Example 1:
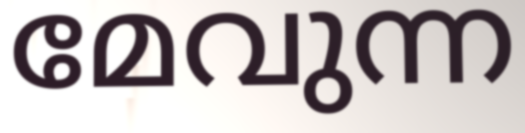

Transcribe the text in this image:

മേവുന്ന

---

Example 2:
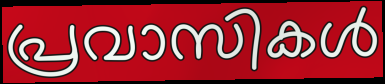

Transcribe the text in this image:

പ്രവാസികൾ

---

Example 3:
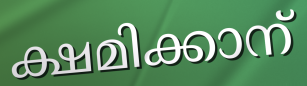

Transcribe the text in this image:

ക്ഷമിക്കാന്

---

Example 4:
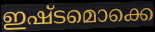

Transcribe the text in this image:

ഇഷ്ടമൊക്കെ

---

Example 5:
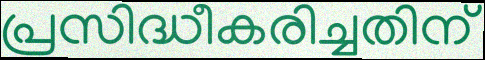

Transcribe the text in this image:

പ്രസിദ്ധീകരിച്ചതിന്